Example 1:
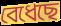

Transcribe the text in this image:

বেধেছে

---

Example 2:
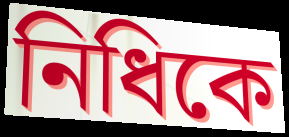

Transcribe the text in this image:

নিধিকে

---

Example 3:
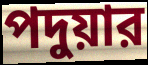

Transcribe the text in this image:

পদুয়ার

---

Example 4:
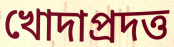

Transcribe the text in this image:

খোদাপ্রদত্ত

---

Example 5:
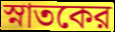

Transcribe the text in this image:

স্নাতকের